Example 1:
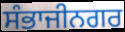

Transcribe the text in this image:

ਸੰਭਾਜੀਨਗਰ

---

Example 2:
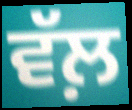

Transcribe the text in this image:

ਵੱਲ਼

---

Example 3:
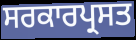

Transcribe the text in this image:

ਸਰਕਾਰਪ੍ਰਸਤ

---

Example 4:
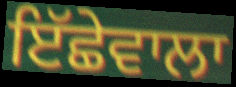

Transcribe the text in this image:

ਇੱਛੇਵਾਲਾ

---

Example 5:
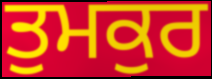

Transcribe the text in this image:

ਤੁਮਕੁਰ